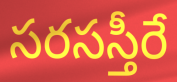
సరసస్తీరే